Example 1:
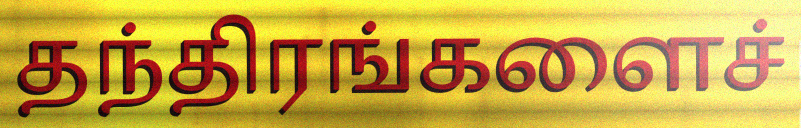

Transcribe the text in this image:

தந்திரங்களைச்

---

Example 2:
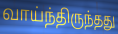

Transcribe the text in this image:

வாய்ந்திருந்தது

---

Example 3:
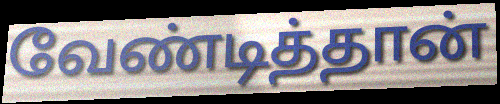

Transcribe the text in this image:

வேண்டித்தான்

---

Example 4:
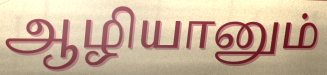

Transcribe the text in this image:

ஆழியானும்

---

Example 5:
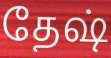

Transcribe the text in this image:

தேஷ்